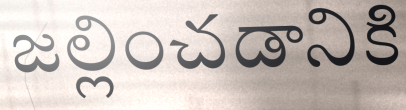
జల్లించడానికి